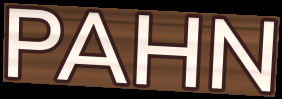
PAHN